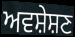
ਅਵਸ਼ੇਸ਼ਣ